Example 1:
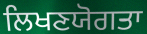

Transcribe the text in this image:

ਲਿਖਣਯੋਗਤਾ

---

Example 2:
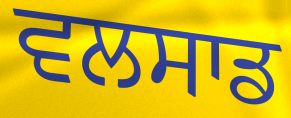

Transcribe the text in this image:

ਵਲਸਾਡ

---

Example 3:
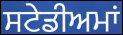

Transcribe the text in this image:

ਸਟੇਡੀਅਮਾਂ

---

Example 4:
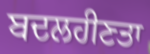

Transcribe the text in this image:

ਬਦਲਹੀਣਤਾ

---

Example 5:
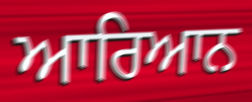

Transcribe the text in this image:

ਆਰਿਆਨ